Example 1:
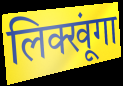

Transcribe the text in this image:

लिक्खूंगा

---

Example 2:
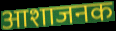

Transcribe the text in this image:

आशाजनक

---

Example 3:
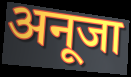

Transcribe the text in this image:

अनूजा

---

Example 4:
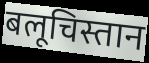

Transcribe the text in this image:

बलूचिस्‍तान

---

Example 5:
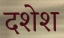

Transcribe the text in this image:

दशेश